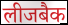
लीजबैक